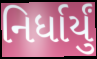
નિર્ધાર્યું